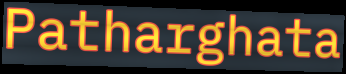
Patharghata